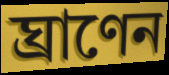
ঘ্রাণেন